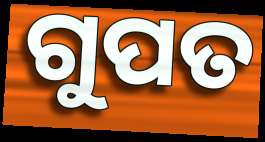
ଗୁପତ